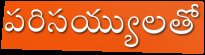
పరిసయ్యులతో